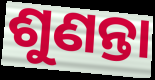
ଶୁଣନ୍ତା